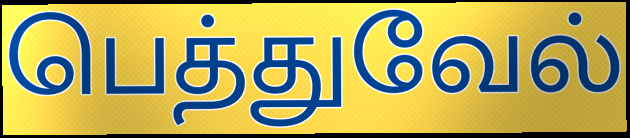
பெத்துவேல்